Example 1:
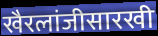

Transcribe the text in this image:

खैरलांजीसारखी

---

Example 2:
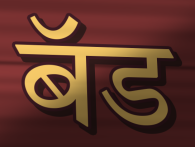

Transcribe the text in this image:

बॅड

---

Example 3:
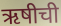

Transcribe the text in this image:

ॠषीची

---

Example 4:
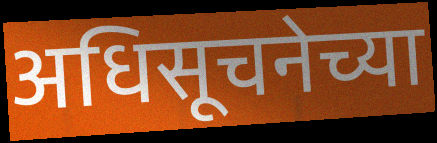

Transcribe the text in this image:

अधिसूचनेच्या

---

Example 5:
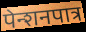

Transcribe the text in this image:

पेन्शनपात्र